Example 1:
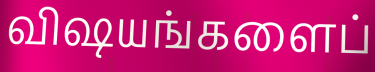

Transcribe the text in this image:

விஷயங்களைப்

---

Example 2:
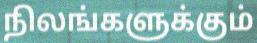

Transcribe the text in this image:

நிலங்களுக்கும்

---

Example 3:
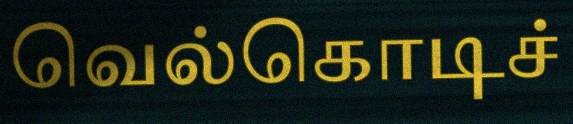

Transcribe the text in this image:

வெல்கொடிச்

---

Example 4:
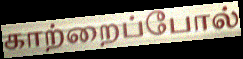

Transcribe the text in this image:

காற்றைப்போல்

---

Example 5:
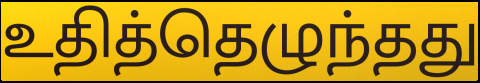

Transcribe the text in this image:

உதித்தெழுந்தது